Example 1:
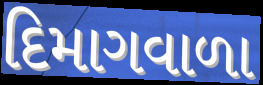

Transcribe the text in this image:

દિમાગવાળા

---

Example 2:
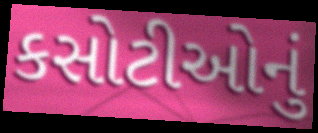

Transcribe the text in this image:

કસોટીઓનું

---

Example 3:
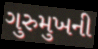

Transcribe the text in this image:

ગુરુમુખની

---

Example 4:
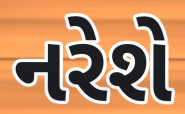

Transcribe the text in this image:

નરેશે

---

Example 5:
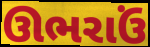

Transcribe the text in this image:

ઊભરાઉં